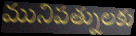
మునిపత్నులకు